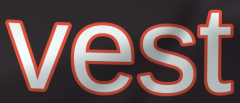
vest